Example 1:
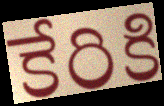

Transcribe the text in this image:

కేరికి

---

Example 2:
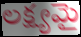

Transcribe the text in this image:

లక్ష్యమై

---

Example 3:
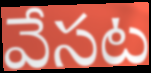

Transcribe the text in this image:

వేసట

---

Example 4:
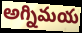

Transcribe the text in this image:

అగ్నిమయ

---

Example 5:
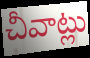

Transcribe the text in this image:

చీవాట్లు